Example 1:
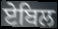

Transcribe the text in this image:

ਏਬਿਲ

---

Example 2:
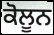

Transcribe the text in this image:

ਕੋਲੂਨ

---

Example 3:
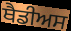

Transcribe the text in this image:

ਥੈਡੀਅਸ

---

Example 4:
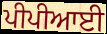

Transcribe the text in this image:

ਪੀਪੀਆਈ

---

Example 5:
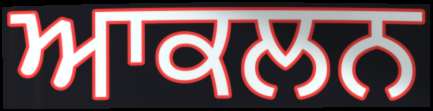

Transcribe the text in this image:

ਆਕਲਨ